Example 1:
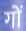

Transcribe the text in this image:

गों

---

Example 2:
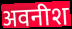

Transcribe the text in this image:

अवनीश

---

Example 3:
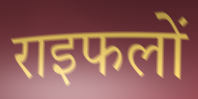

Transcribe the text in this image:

राइफलों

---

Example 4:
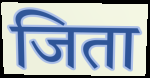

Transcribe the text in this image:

जिता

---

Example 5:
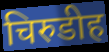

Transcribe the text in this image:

चिरुडीह